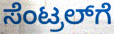
ಸೆಂಟ್ರಲ್‌ಗೆ